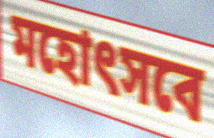
মহোৎসবে